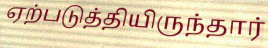
ஏற்படுத்தியிருந்தார்